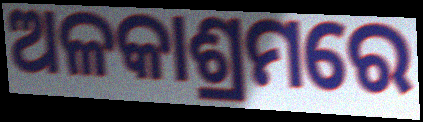
ଅଳକାଶ୍ରମରେ